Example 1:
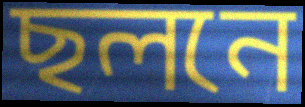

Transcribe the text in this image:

ছলনে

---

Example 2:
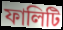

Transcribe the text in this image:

ফালিটি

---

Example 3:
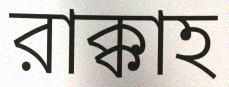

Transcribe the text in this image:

রাক্কাহ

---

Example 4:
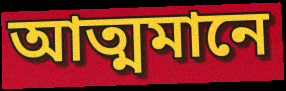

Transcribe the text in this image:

আত্মমানে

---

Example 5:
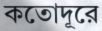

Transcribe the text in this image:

কতোদূরে